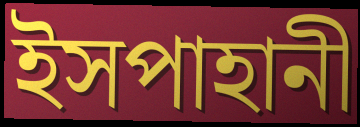
ইসপাহানী